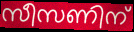
സീസണിന്